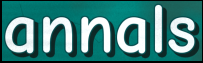
annals